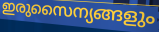
ഇരുസൈന്യങ്ങളും